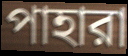
পাহারা